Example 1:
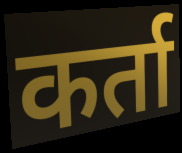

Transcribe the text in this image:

कर्ता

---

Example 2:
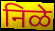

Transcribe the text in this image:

निळे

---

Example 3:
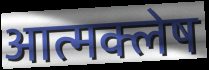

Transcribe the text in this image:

आत्मक्लेष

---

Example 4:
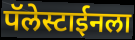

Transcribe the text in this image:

पॅलेस्टाईनला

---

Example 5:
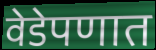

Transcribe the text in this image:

वेडेपणात